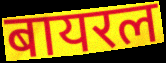
बायरल